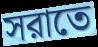
সরাতে